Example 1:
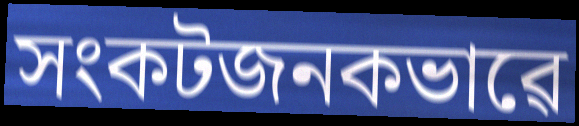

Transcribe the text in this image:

সংকটজনকভাৱে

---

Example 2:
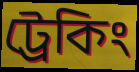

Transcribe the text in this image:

ট্ৰেকিং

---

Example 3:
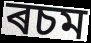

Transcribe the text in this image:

ৰচম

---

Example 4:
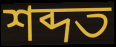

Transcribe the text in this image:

শব্দত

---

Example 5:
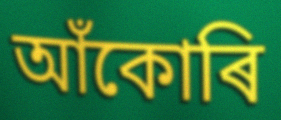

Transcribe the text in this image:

আঁকোৰি